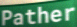
Pather